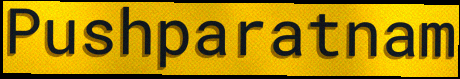
Pushparatnam